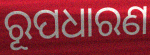
ରୂପଧାରଣ